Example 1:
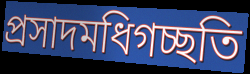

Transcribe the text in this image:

প্রসাদমধিগচ্ছতি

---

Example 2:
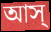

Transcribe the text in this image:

আস্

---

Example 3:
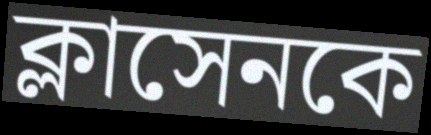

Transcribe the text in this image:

ক্লাসেনকে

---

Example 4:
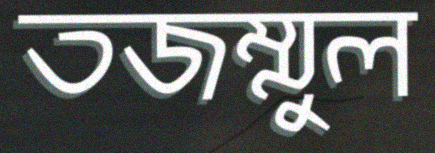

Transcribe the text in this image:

তজম্মুল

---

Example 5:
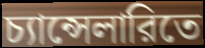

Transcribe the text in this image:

চ্যান্সেলারিতে